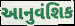
આનુવંશિક